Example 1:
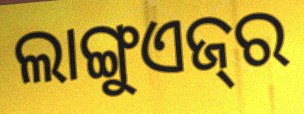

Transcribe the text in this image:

ଲାଙ୍ଗୁଏଜ୍‌ର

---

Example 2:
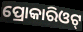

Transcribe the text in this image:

ପ୍ରୋକାରିଓଟ୍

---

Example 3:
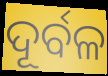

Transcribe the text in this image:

ଦୂର୍ବଳ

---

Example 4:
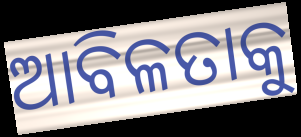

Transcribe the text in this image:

ଆବିଳତାକୁ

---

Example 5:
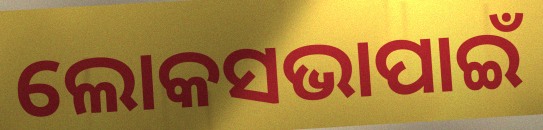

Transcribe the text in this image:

ଲୋକସଭାପାଇଁ